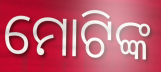
ମୋଟିଙ୍କ